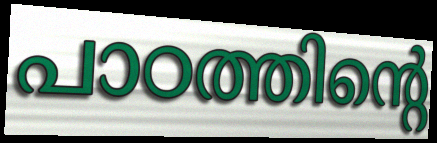
പാഠത്തിന്റെ